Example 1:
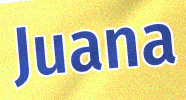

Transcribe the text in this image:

Juana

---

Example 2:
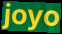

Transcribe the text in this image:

joyo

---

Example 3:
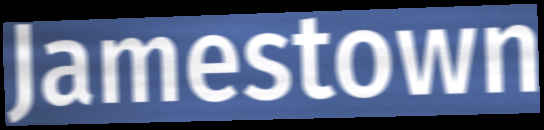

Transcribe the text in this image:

Jamestown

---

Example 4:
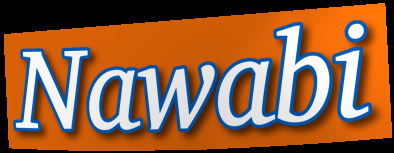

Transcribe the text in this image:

Nawabi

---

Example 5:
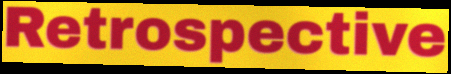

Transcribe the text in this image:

Retrospective